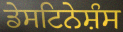
ਡੇਸਟਿਨੇਸ਼ੰਸ